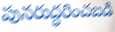
పునరుద్ధరించబడి